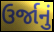
ઉર્જાનું